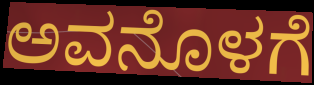
ಅವನೊಳಗೆ